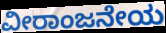
ವೀರಾಂಜನೇಯ